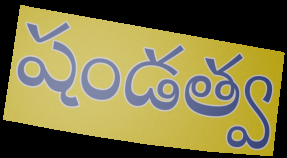
షండత్వ